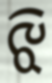
ଝି